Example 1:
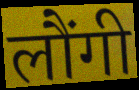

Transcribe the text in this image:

लौंगी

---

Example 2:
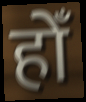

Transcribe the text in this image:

होँ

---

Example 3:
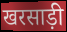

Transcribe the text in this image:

खरसाड़ी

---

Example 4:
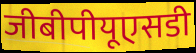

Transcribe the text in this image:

जीबीपीयूएसडी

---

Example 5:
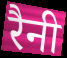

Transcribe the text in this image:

रैनी